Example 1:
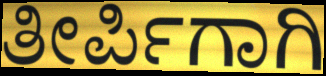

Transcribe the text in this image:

ತೀರ್ಪಿಗಾಗಿ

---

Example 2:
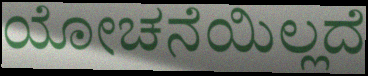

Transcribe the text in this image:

ಯೋಚನೆಯಿಲ್ಲದೆ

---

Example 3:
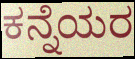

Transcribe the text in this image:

ಕನ್ನೆಯರ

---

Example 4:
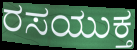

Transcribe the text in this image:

ರಸಯುಕ್ತ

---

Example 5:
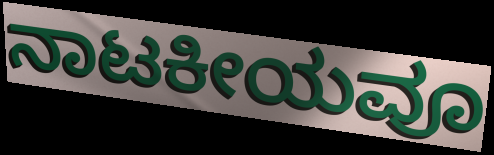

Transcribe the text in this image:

ನಾಟಕೀಯವೂ